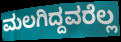
ಮಲಗಿದ್ದವರೆಲ್ಲ